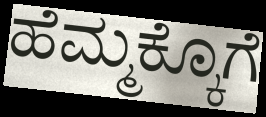
ಹೆಮ್ಮಕ್ಕೊಗೆ